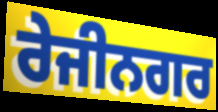
ਰੇਜੀਨਗਰ